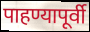
पाहण्यापूर्वी